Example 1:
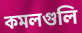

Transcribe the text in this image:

কমলগুলি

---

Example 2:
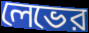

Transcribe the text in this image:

লেভের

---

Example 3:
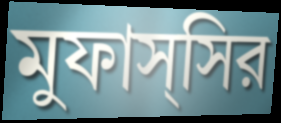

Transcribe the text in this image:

মুফাস্সির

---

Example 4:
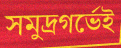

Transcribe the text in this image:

সমুদ্রগর্ভেই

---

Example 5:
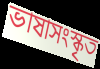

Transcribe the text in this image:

ভাষাসংস্কৃত